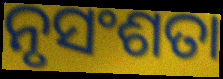
ନୃସଂଶତା